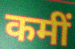
कमीं